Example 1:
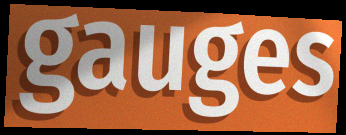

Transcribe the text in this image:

gauges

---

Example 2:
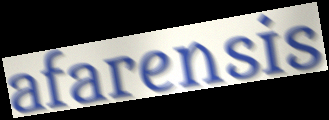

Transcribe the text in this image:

afarensis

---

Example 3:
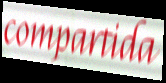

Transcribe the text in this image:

compartida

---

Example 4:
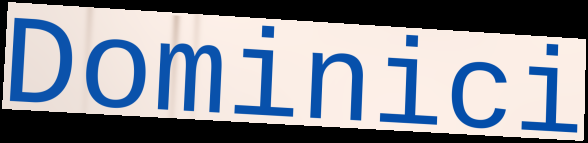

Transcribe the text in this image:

Dominici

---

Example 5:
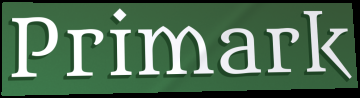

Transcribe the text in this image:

Primark